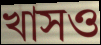
খাসও